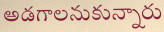
అడగాలనుకున్నారు